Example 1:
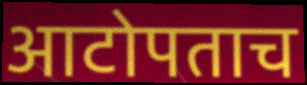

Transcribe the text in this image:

आटोपताच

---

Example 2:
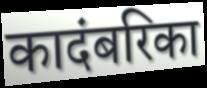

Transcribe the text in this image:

कादंबरिका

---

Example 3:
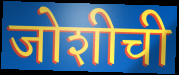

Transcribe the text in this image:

जोशीची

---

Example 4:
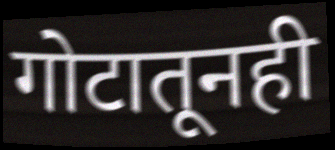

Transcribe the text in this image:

गोटातूनही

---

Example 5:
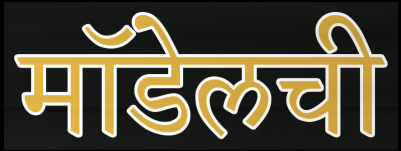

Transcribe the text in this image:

मॉडेलची